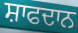
ਸ਼ਾਫਦਾਨ